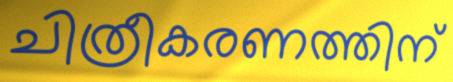
ചിത്രീകരണത്തിന്